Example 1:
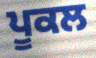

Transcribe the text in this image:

ਪੂਕਲ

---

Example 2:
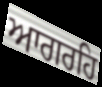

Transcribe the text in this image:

ਆਗਰਹਿ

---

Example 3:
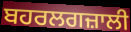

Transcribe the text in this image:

ਬਹਰਲਗਜ਼ਾਲੀ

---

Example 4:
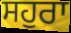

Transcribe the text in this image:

ਸਹੁਰਾ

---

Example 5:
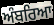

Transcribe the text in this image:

ਅੰਬਰਿਆ